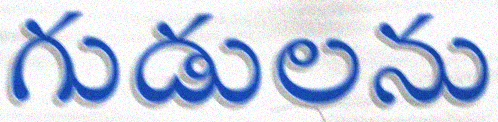
గుడులను